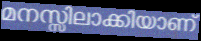
മനസ്സിലാക്കിയാണ്